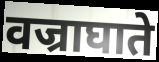
वज्राघाते